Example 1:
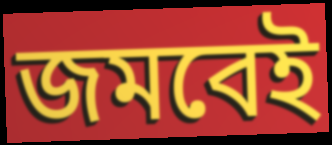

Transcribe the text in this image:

জমবেই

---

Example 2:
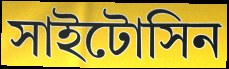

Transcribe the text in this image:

সাইটোসিন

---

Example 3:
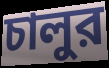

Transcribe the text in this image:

চালুর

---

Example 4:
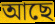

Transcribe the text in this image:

আছে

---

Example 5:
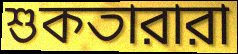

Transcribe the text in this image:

শুকতারারা